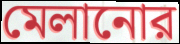
মেলানোর